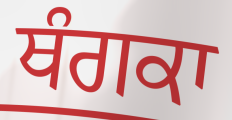
ਥੰਗਕਾ